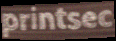
printsec